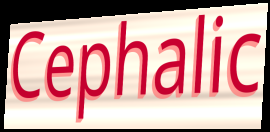
Cephalic